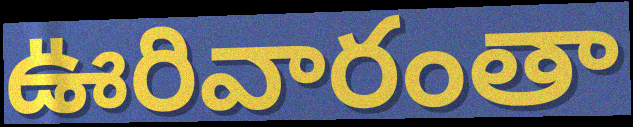
ఊరివారంతా